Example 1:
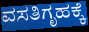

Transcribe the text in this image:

ವಸತಿಗೃಹಕ್ಕೆ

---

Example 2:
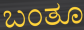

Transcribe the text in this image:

ಬಂತೂ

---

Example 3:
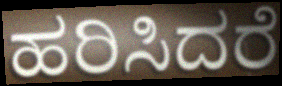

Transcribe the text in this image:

ಹರಿಸಿದರೆ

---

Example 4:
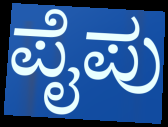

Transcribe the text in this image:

ಪೈಪು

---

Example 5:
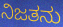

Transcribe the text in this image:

ನಿಜತನು